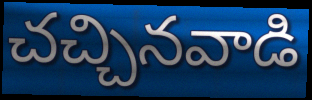
చచ్చినవాడి